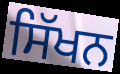
ਸਿੱਖਨ